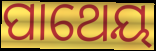
ପାଥେୟ